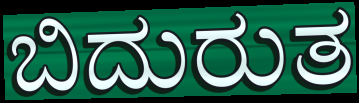
ಬಿದುರುತ